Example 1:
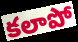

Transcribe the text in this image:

కలాపో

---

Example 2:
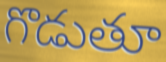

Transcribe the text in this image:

గొడుతూ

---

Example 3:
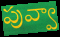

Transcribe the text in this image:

పువ్వా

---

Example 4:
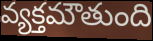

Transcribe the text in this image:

వ్యక్తమౌతుంది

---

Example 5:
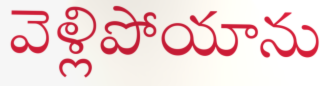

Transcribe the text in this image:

వెళ్లిపోయాను